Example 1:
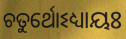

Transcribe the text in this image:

ଚତୁର୍ଥୋଽଧ୍ୟାୟଃ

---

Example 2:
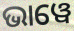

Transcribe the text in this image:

ଭାୱେ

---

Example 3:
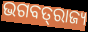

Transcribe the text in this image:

ଭଗବତ୍‌ରାଜ୍ୟ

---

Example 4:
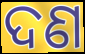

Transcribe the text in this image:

ଦଣ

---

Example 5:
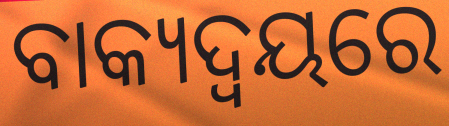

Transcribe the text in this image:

ବାକ୍ୟଦ୍ଵୟରେ